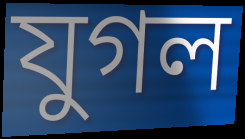
যুগল